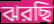
ঝরছি